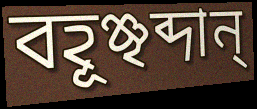
বহূঞ্ছব্দান্